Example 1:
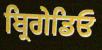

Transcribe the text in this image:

ਬ੍ਰਿਗੇਡਿਓ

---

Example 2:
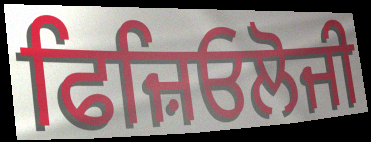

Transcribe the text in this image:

ਫਿਜ਼ਿਓਲੋਜੀ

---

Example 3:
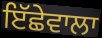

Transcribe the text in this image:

ਇੱਛੇਵਾਲਾ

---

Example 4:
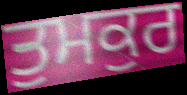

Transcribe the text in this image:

ਤੁਮਕੁਰ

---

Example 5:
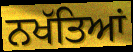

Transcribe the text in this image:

ਨਖੱਤਿਆਂ